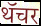
थॅचर